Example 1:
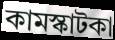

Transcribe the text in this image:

কামস্কাটকা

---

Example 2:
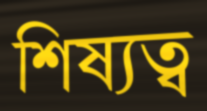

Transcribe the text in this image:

শিষ্যত্ব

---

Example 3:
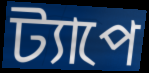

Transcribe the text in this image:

ট্যাপে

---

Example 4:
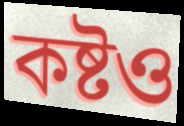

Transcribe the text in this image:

কষ্টও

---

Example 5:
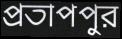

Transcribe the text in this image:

প্রতাপপুর